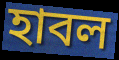
হাবল